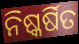
ନିଷ୍କର୍ଷିତ